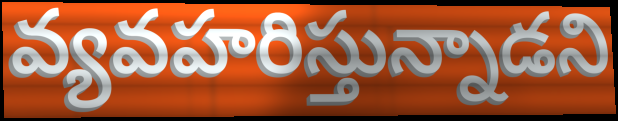
వ్యవహరిస్తున్నాడని